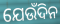
ଯେଉଁଦିନ